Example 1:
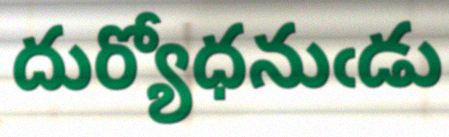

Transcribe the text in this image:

దుర్యోధనుఁడు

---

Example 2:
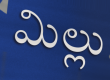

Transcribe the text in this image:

మిల్లు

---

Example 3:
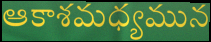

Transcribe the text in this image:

ఆకాశమధ్యమున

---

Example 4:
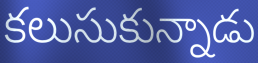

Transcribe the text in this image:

కలుసుకున్నాడు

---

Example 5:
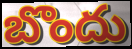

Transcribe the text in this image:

బొందు